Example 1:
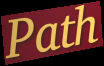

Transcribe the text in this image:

Path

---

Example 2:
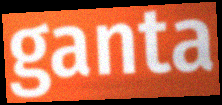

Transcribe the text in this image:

ganta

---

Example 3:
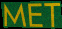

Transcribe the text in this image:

MET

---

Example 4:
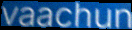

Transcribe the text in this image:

vaachun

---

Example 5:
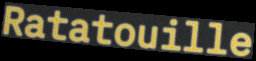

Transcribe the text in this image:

Ratatouille